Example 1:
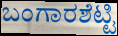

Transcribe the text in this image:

ಬಂಗಾರಶೆಟ್ಟಿ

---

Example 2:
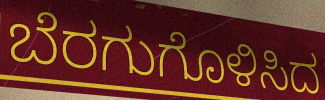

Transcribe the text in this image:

ಬೆರಗುಗೊಳಿಸಿದ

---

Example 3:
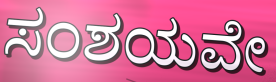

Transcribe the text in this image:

ಸಂಶಯವೇ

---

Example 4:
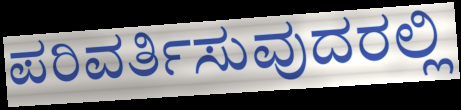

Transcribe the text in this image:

ಪರಿವರ್ತಿಸುವುದರಲ್ಲಿ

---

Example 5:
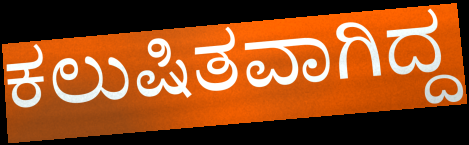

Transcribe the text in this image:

ಕಲುಷಿತವಾಗಿದ್ದ